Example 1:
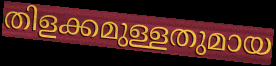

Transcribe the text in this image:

തിളക്കമുള്ളതുമായ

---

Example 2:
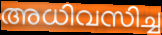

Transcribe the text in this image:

അധിവസിച്ച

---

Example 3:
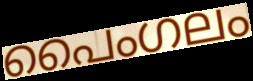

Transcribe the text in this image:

പൈംഗലം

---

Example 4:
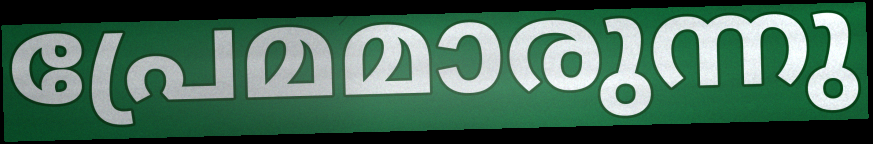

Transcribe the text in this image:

പ്രേമമാരുന്നു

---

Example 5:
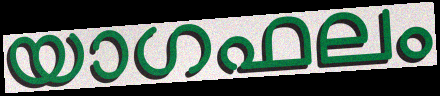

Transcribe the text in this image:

യാഗഫലം